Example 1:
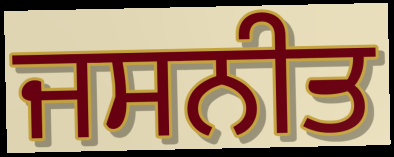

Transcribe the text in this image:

ਜਸਨੀਤ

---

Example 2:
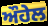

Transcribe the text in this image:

ਔਹੇਲ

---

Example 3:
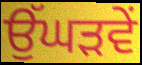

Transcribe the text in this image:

ਉੱਘੜਵੇਂ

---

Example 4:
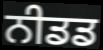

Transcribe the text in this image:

ਨੀਡਡ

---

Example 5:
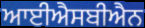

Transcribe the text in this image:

ਆਈਐਸਬੀਐਨ